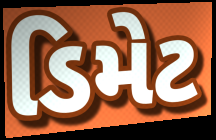
ડિમેટ